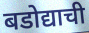
बडोद्याची